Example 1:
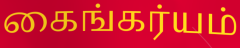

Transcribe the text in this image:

கைங்கர்யம்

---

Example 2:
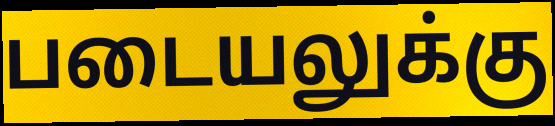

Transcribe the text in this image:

படையலுக்கு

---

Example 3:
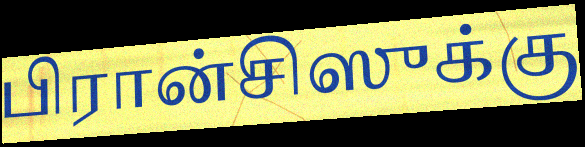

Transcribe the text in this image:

பிரான்சிஸுக்கு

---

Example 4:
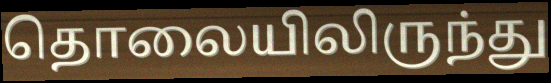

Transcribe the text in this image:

தொலையிலிருந்து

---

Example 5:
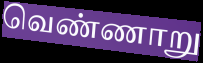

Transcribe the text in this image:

வெண்ணாறு